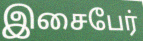
இசைபேர்